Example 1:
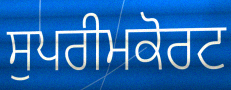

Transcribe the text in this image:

ਸੁਪਰੀਮਕੋਰਟ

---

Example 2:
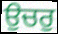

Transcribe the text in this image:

ਉਚਰੁ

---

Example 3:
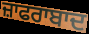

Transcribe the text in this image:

ਜ਼ਾਫਰਾਬਾਦ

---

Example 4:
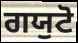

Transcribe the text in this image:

ਗਯੁਟੋ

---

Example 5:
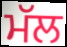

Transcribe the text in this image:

ਮੱਲ